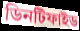
ডিনটিফাইড